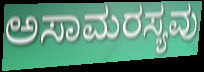
ಅಸಾಮರಸ್ಯವು